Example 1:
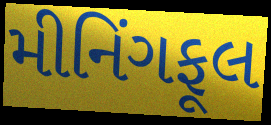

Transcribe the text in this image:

મીનિંગફૂલ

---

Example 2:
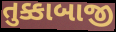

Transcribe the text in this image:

તુક્કાબાજી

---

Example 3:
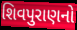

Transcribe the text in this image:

શિવપુરાણનો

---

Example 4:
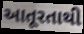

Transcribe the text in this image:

આતૂરતાથી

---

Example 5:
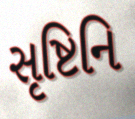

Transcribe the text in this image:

સૃષ્ટિનિ